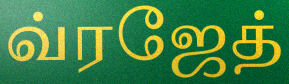
வ்ரஜேத்